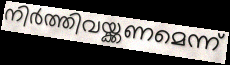
നിർത്തിവയ്ക്കണമെന്ന്